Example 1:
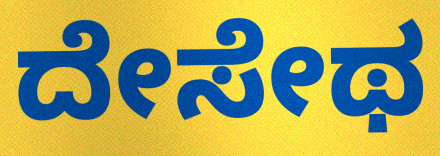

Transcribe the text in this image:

ದೇಸೇಥ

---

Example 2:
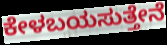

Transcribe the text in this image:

ಕೇಳಬಯಸುತ್ತೇನೆ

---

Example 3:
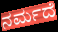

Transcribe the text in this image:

ನರ್ಮದೆ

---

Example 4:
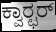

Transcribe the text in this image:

ಕ್ವಾರ‍್ಟರ್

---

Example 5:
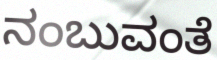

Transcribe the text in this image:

ನಂಬುವಂತೆ